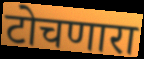
टोचणारा